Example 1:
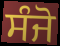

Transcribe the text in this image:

ਸੰਜੋ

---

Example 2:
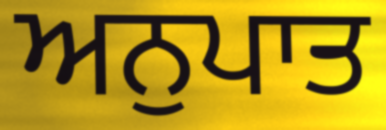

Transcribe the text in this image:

ਅਨੁਪਾਤ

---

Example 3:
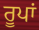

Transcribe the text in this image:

ਰੂਪਾਂ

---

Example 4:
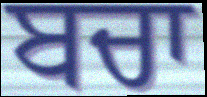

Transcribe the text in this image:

ਬਚਾ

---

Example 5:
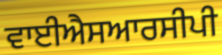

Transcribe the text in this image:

ਵਾਈਐਸਆਰਸੀਪੀ